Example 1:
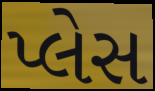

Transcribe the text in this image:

પ્લેસ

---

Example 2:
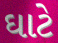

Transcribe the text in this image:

ઘાટે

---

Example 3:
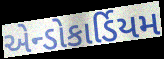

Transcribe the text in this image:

એન્ડોકાર્ડિયમ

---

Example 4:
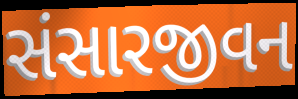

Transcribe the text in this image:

સંસારજીવન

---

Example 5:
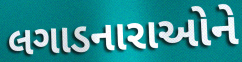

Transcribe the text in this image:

લગાડનારાઓને